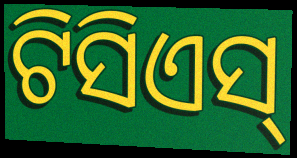
ଟିସିଏସ୍